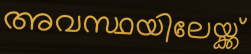
അവസ്ഥയിലേയ്ക്ക്